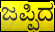
ಜಪ್ಪಿದ